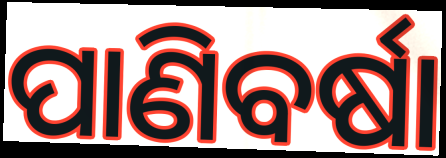
ପାଣିବର୍ଷା